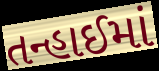
તન્હાઈમાં